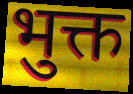
भुक्त